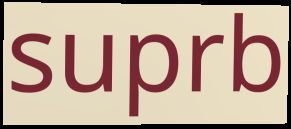
suprb